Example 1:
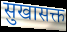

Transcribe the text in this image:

सुखासक्त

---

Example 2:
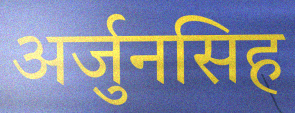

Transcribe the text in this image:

अर्जुनसिह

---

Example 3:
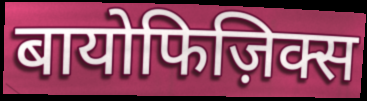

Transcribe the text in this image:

बायोफिज़िक्स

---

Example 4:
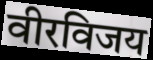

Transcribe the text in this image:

वीरविजय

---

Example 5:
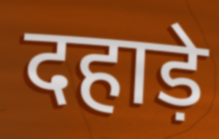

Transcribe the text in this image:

दहाड़े